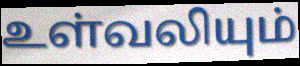
உள்வலியும்